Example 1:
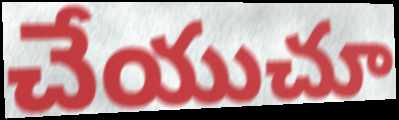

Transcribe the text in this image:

చేయుచూ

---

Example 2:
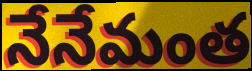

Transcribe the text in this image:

నేనేమంత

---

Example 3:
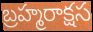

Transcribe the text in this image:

బ్రహ్మరాక్షస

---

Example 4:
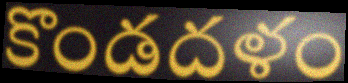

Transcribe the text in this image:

కొండదళం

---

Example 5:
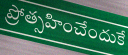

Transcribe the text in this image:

ప్రోత్సహించేందుకే